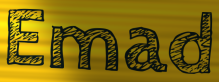
Emad